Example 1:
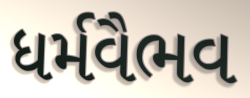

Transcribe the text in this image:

ધર્મવૈભવ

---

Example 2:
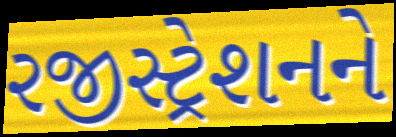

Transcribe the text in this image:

રજીસ્ટ્રેશનને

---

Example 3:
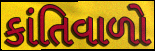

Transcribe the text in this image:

કાંતિવાળો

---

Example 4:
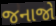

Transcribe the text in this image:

જનાજો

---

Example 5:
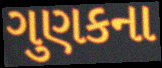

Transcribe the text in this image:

ગુણકના